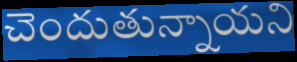
చెందుతున్నాయని